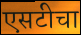
एसटीचा